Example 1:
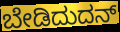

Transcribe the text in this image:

ಬೇಡಿದುದನ್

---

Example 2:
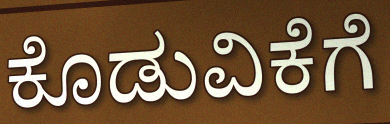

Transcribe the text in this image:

ಕೊಡುವಿಕೆಗೆ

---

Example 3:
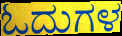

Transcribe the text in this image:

ಓದುಗಳ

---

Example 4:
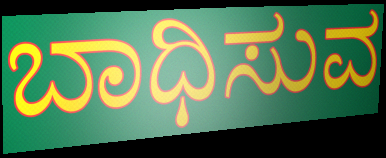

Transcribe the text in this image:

ಬಾಧಿಸುವ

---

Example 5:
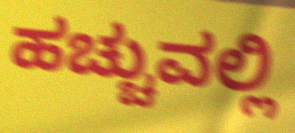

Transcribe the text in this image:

ಹಚ್ಚುವಲ್ಲಿ